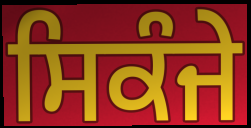
ਸਿਕੰਜੇ